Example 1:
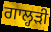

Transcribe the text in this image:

ਗਾਲ੍ਹੜੀ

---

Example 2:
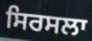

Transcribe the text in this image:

ਸਿਰਸਲਾ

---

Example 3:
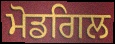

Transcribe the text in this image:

ਮੋਡਗਿਲ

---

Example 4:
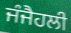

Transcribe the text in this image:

ਜੰਜੈਹਲੀ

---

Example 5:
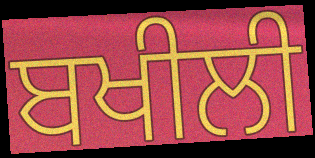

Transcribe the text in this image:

ਬਖੀਲੀ